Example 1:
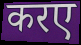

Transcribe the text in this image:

करए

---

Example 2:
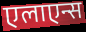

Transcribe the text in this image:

एलाएन्स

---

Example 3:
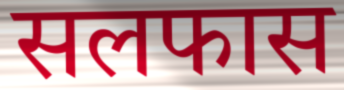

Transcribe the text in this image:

सलफास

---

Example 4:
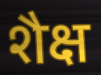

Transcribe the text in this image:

शैक्ष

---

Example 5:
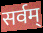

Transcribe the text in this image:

सर्वम्